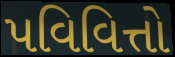
પવિવિત્તો